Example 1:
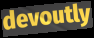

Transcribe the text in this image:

devoutly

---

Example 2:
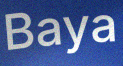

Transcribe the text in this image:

Baya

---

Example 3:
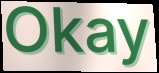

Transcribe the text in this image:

Okay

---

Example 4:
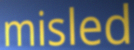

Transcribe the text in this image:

misled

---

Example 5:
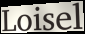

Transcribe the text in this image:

Loisel